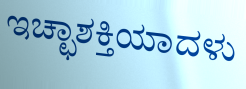
ಇಚ್ಛಾಶಕ್ತಿಯಾದಳು